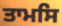
ਤਾਮਸਿ